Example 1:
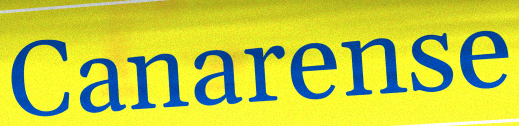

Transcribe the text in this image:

Canarense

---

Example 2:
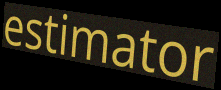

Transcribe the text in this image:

estimator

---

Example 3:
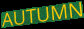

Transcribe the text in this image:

AUTUMN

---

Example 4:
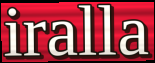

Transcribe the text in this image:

iralla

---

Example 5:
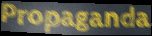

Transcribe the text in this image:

Propaganda